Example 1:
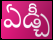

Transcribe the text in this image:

ఏడ్చీ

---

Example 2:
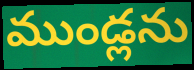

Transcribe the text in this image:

ముండ్లను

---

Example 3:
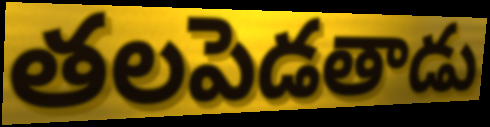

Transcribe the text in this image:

తలపెడతాడు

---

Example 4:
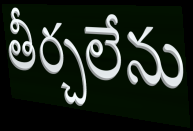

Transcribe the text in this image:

తీర్చలేను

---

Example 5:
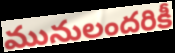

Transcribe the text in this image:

మునులందరికీ